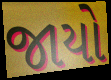
જાયો